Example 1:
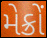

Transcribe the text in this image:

મેક્રોં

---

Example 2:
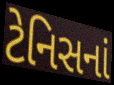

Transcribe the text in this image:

ટેનિસનાં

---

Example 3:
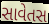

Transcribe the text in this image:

સાવેતસ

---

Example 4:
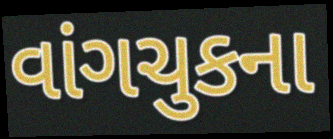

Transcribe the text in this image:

વાંગચુકના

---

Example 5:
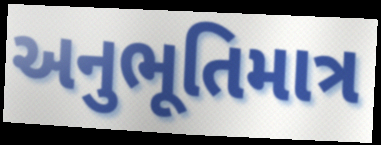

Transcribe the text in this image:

અનુભૂતિમાત્ર